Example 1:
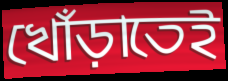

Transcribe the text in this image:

খোঁড়াতেই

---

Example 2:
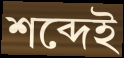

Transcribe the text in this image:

শব্দেই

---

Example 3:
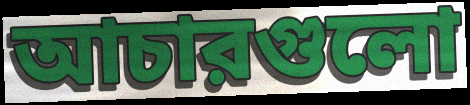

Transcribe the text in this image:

আচারগুলো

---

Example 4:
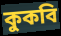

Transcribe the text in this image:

কুকবি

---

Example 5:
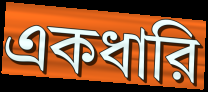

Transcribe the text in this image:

একধারি